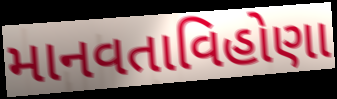
માનવતાવિહોણા